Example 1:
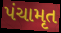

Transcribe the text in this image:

પંચામૃત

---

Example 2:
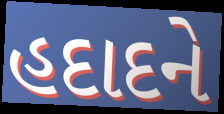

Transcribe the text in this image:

હદાદને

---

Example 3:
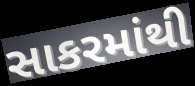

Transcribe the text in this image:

સાકરમાંથી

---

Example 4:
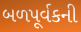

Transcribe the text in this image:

બળપૂર્વકની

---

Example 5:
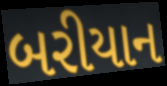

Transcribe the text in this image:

બરીયાન